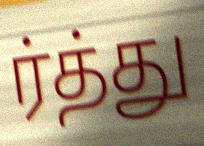
ர்த்து